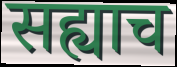
सह्याच